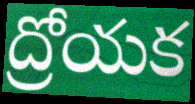
ద్రోయక